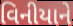
વિનીયાને